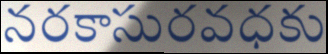
నరకాసురవధకు